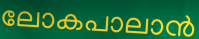
ലോകപാലാൻ